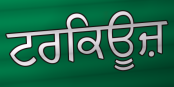
ਟਰਕਿਊਜ਼